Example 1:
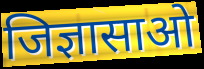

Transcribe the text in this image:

जिज्ञासाओ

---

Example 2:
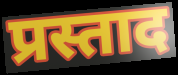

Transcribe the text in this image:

प्रस्ताद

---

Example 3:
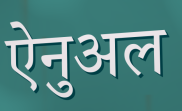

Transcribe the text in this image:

ऐनुअल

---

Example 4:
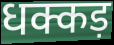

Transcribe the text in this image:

धक्कड़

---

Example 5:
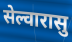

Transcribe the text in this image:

सेल्वारासु